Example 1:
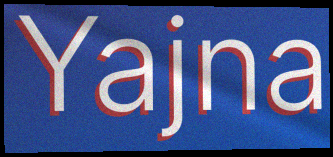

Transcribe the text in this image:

Yajna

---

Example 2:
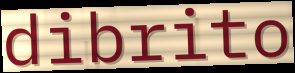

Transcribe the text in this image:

dibrito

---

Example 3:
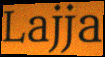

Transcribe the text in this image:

Lajja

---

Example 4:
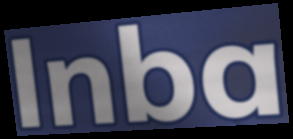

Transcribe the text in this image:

Inba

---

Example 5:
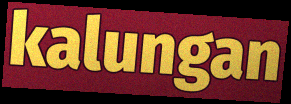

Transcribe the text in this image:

kalungan